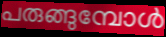
പരുങ്ങുമ്പോൾ